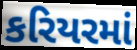
કરિયરમાં